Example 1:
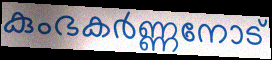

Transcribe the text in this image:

കുംഭകർണ്ണനോട്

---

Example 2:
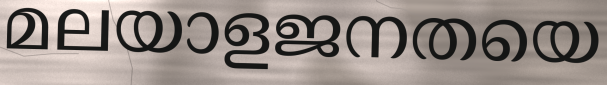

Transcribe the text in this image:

മലയാളജനതയെ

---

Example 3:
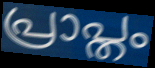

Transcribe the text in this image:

പ്രാപ്തം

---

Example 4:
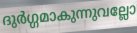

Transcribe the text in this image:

ദുർഗ്ഗമാകുന്നുവല്ലോ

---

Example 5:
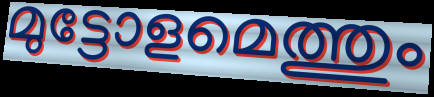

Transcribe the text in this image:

മുട്ടോളമെത്തും